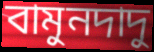
বামুনদাদু